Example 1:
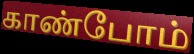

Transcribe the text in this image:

காண்போம்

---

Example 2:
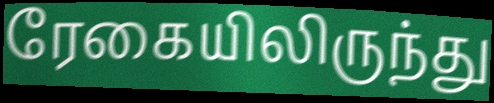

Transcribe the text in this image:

ரேகையிலிருந்து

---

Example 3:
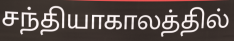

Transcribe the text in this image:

சந்தியாகாலத்தில்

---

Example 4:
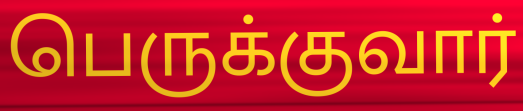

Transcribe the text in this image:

பெருக்குவார்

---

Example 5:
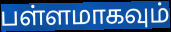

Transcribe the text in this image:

பள்ளமாகவும்